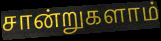
சான்றுகளாம்